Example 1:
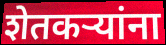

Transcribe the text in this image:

शेतकऱ्यांना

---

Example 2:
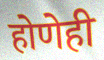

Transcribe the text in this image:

होणेही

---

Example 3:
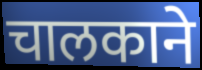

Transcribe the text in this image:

चालकाने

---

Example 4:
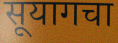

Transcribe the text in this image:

सूयागचा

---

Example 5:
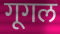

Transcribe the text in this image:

गूगल